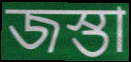
জস্তা